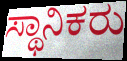
ಸ್ಥಾನಿಕರು